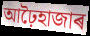
আঢ়ৈহাজাৰ